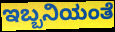
ಇಬ್ಬನಿಯಂತೆ